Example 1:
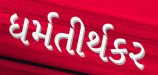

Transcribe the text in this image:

ધર્મતીર્થકર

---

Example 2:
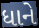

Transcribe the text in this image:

ધાને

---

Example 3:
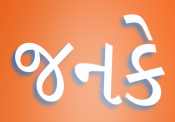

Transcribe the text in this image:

જનકે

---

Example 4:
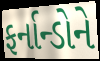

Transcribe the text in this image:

ફર્નાન્ડોને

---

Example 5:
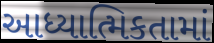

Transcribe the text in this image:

આધ્યાત્મિકતામાં